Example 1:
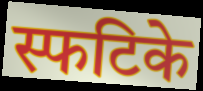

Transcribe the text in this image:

स्फटिके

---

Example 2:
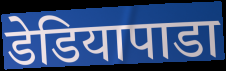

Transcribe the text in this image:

डेडियापाडा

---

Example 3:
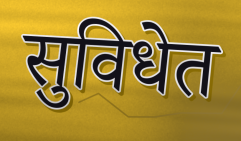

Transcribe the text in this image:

सुविधेत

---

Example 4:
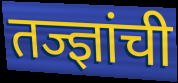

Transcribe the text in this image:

तज्ज्ञांची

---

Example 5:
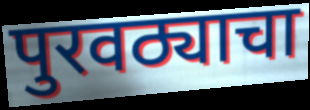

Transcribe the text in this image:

पुरवठ्याचा